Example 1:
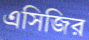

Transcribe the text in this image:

এসিজির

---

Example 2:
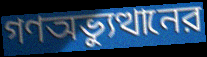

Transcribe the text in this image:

গণঅভ্যুত্থানের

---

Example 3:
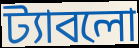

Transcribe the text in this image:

ট্যাবলো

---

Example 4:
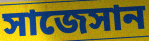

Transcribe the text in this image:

সাজেসান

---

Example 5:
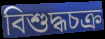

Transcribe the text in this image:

বিশুদ্ধচক্র